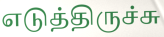
எடுத்திருச்சு